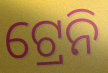
ଟ୍ରେନି